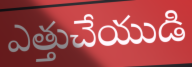
ఎత్తుచేయుడి